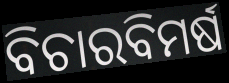
ବିଚାରବିମର୍ଷ